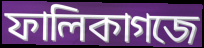
ফালিকাগজে